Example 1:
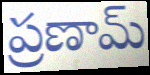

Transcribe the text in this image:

ప్రణామ్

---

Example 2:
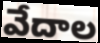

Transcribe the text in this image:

వేదాల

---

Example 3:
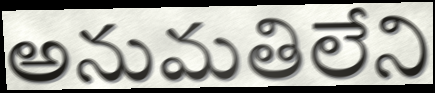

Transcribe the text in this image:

అనుమతిలేని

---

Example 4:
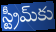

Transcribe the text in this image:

స్ట్రీమ్‌కు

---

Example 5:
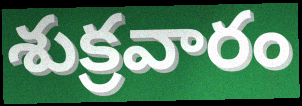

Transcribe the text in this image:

శుక్రవారం